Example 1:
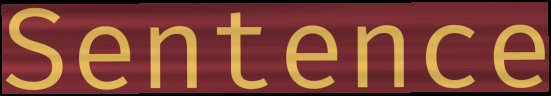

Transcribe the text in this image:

Sentence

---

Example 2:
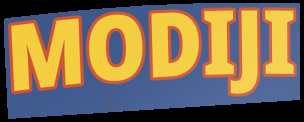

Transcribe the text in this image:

MODIJI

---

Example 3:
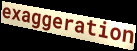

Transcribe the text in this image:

exaggeration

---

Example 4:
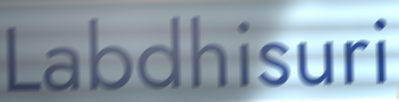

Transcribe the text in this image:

Labdhisuri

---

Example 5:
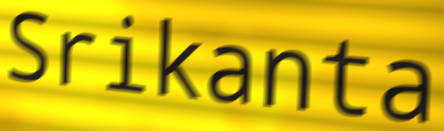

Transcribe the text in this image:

Srikanta